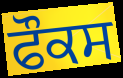
ਫੌਕਸ